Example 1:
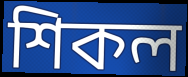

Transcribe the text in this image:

শিকল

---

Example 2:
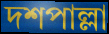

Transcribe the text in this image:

দশপাল্লা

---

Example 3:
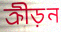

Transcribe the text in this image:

ক্রীড়ন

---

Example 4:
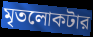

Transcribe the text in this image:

মৃতলোকটার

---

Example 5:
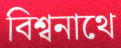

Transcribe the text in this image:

বিশ্বনাথে